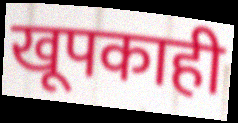
खूपकाही